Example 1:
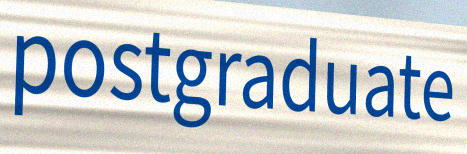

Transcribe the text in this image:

postgraduate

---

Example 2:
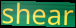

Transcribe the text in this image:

shear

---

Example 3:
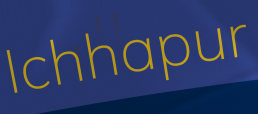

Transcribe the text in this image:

Ichhapur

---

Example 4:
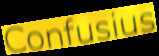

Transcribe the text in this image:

Confusius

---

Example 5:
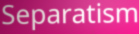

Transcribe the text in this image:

Separatism